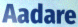
Aadare